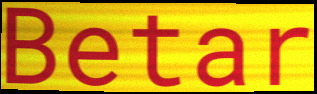
Betar